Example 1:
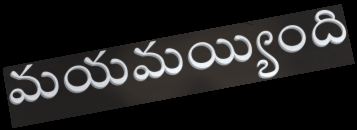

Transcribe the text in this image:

మయమయ్యింది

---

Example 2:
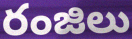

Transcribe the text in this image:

రంజిలు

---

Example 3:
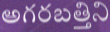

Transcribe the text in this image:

అగరబత్తిని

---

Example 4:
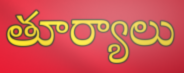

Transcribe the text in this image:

తూర్యాలు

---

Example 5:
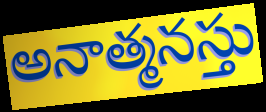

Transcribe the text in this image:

అనాత్మనస్తు